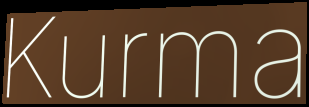
Kurma